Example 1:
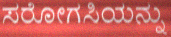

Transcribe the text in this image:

ಸರೋಗಸಿಯನ್ನು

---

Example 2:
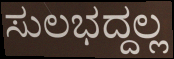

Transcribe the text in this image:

ಸುಲಭದ್ದಲ್ಲ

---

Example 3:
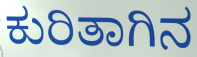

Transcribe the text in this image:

ಕುರಿತಾಗಿನ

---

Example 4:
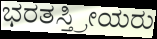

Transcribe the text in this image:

ಭರತಸ್ತ್ರೀಯರು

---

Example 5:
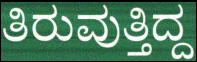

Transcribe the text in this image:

ತಿರುವುತ್ತಿದ್ದ